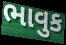
ભાવુક